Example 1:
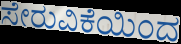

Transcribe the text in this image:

ಸೇರುವಿಕೆಯಿಂದ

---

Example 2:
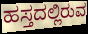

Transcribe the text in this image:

ಹಸ್ತದಲ್ಲಿರುವ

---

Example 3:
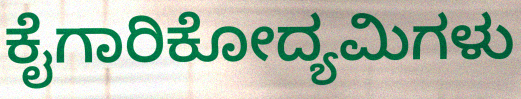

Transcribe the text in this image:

ಕೈಗಾರಿಕೋದ್ಯಮಿಗಳು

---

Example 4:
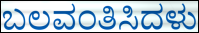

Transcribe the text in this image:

ಬಲವಂತಿಸಿದಳು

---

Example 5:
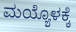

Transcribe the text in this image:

ಮಯ್ಯೊಳಕ್ಕೆ